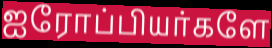
ஐரோப்பியர்களே